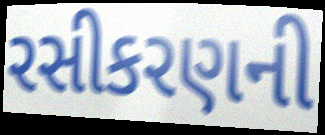
રસીકરણની